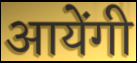
आयेंगी